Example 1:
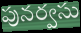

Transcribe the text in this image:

పునర్వసు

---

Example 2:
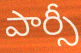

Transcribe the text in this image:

పార్సీ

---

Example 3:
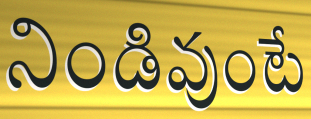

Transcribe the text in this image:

నిండివుంటే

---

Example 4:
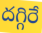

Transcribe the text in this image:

దగ్గిరే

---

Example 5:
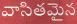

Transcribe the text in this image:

వాసితమైన